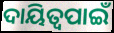
ଦାୟିତ୍ୱପାଇଁ